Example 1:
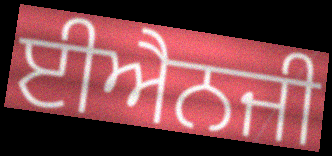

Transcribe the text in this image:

ਈਐਨਜੀ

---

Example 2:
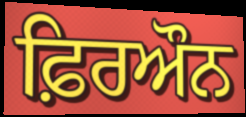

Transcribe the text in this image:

ਫ਼ਿਰਔਨ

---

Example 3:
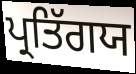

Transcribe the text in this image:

ਪ੍ਰਤਿੱਗਯ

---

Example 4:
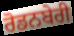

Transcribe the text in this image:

ਰੋਡਨਬੇਰੀ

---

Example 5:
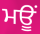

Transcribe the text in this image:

ਮਊਂ